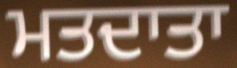
ਮਤਦਾਤਾ